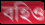
বহিও